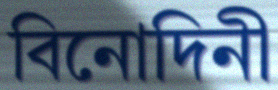
বিনোদিনী